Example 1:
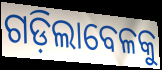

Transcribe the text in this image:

ଗଡ଼ିଲାବେଳକୁ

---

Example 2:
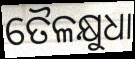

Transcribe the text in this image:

ତୈଳକ୍ଷୁଧା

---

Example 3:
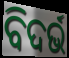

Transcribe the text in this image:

ବିଦର୍ଭ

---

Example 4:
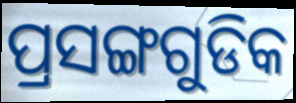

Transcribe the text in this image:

ପ୍ରସଙ୍ଗଗୁଡିକ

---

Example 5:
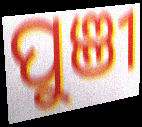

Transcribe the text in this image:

ପୁଞୀ